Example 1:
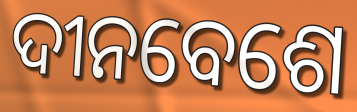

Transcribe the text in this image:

ଦୀନବେଶେ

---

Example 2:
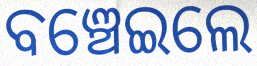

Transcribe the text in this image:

ବଞ୍ଚେଇଲେ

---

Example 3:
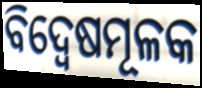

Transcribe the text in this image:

ବିଦ୍ୱେଷମୂଳକ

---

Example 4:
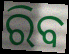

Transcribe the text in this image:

ରିବ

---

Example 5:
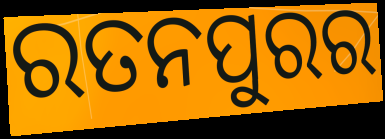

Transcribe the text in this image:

ରତନପୁରର